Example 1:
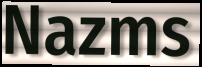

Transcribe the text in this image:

Nazms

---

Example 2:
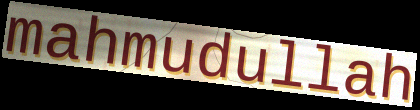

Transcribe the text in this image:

mahmudullah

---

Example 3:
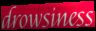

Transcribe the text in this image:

drowsiness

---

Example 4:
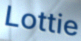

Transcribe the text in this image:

Lottie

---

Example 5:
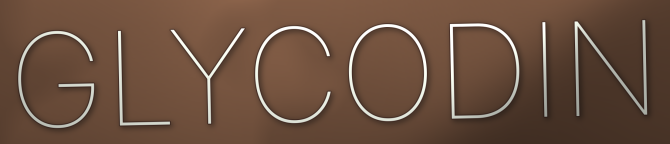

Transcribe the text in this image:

GLYCODIN